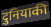
दुनियाकी